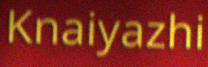
Knaiyazhi